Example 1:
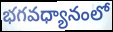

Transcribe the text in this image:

భగవధ్యానంలో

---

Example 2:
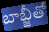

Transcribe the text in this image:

బాబ్జీతో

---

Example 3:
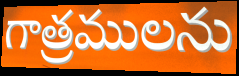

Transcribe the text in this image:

గాత్రములను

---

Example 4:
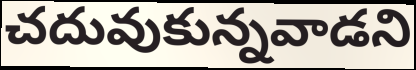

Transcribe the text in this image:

చదువుకున్నవాడని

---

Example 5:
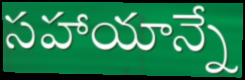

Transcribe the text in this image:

సహాయాన్నే